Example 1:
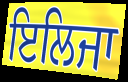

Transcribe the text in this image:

ਇਲਿਜਾ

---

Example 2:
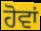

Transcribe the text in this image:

ਹੋਵਾਂ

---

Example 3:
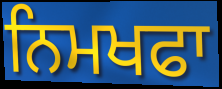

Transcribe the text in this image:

ਨਿਮਖਫਾ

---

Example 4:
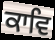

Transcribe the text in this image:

ਕਾਵਿ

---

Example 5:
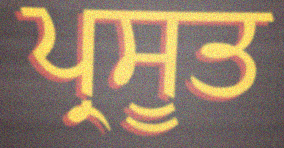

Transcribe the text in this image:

ਪ੍ਰਸੂਤ